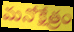
మనోక్షేత్రం